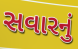
સવારનું